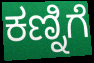
ಕಣ್ನಿಗೆ